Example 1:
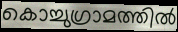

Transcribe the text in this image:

കൊച്ചുഗ്രാമത്തിൽ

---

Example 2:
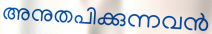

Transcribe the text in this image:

അനുതപിക്കുന്നവൻ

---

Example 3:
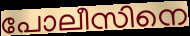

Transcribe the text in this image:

പോലീസിനെ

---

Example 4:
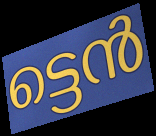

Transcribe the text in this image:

ട്ടെൻ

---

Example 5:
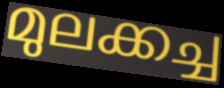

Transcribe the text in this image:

മുലക്കച്ച